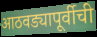
आठवड्यापूर्वीची